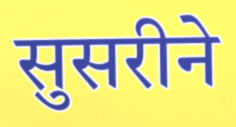
सुसरीने